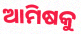
ଆମିଷକୁ